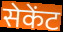
सेकेंट